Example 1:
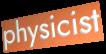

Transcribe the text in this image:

physicist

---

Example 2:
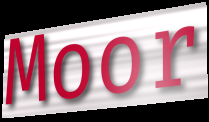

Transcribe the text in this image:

Moor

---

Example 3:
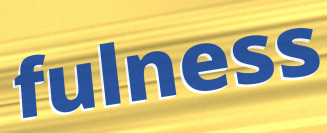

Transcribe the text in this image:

fulness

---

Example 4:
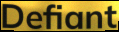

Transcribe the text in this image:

Defiant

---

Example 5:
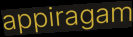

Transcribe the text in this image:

appiragam